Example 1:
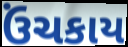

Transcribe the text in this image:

ઉંચકાય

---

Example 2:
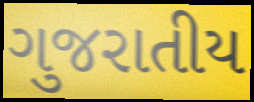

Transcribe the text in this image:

ગુજરાતીય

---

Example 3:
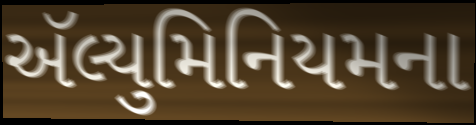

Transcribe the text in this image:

ઍલ્યુમિનિયમના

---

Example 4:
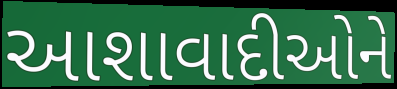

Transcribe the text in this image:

આશાવાદીઓને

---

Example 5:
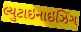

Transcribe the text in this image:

લ્યુટાઇનાઇઝિંગ